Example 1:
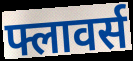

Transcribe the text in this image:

फ्लावर्स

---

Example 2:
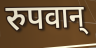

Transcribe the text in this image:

रुपवान्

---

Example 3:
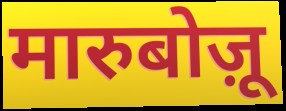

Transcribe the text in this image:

मारुबोज़ू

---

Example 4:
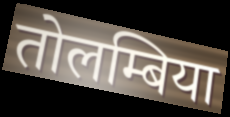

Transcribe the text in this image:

तोलम्बिया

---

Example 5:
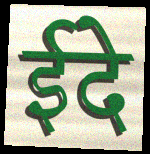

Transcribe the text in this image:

ईदे